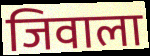
जिवाला